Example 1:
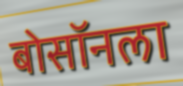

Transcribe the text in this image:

बोसॉनला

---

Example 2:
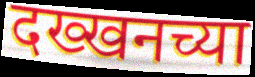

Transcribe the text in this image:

दख्खनच्या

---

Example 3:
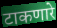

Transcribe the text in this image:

टाकणारे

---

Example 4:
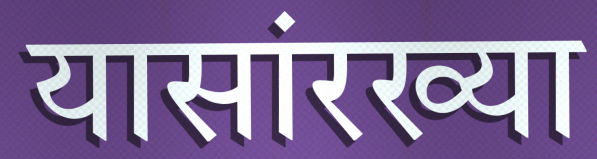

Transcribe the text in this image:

यासांरख्या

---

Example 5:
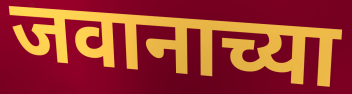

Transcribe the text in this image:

जवानाच्या